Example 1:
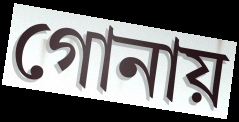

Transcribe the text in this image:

গোনায়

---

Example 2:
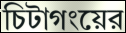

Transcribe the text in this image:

চিটাগংয়ের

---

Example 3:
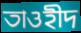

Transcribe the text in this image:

তাওহীদ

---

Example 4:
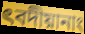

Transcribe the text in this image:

ৎবদীয়ানাং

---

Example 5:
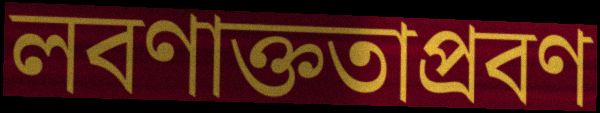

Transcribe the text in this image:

লবণাক্ততাপ্রবণ